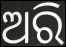
ଅରି